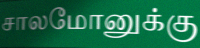
சாலமோனுக்கு